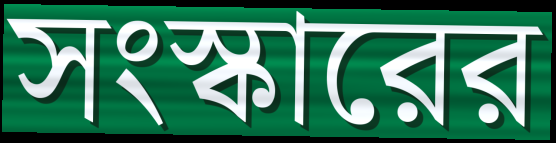
সংস্কারের